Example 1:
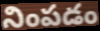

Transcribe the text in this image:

నింపడం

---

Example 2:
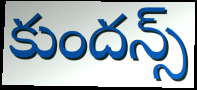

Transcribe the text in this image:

కుందన్స్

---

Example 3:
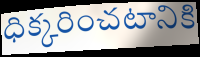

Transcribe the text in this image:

ధిక్కరించటానికి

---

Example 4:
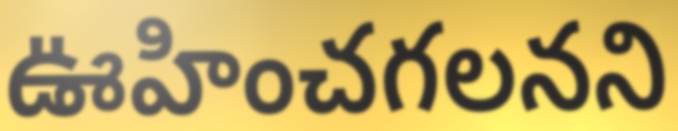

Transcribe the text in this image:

ఊహించగలనని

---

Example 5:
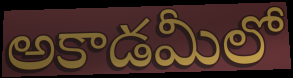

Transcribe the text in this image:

అకాడమీలో